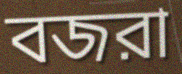
বজরা